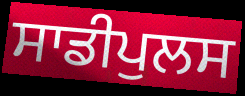
ਸਾਡੀਪੁਲਸ